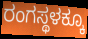
ರಂಗಸ್ಥಳಕ್ಕೂ